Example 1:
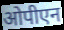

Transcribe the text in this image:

ओपीएन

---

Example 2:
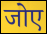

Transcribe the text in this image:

जोए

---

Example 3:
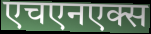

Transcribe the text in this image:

एचएनएक्स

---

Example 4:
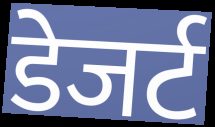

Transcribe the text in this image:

डेजर्ट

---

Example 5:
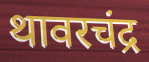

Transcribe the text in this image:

थावरचंद्र